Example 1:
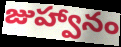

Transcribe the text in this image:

జుహ్వానం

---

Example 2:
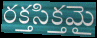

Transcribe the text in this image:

రక్తసిక్తమై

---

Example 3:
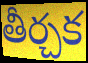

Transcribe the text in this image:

తీర్చక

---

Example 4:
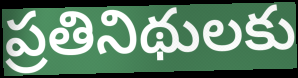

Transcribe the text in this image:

ప్రతినిథులకు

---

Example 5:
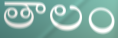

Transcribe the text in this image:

తాలం